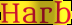
Harb